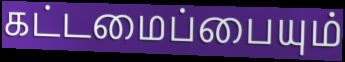
கட்டமைப்பையும்